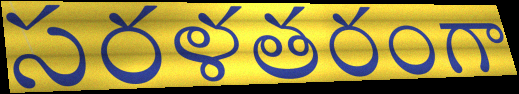
సరళతరంగా